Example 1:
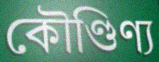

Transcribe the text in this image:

কৌণ্ডিণ্য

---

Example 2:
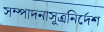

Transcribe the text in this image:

সম্পাদনাসূত্রনির্দেশ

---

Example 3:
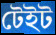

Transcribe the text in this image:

টেইট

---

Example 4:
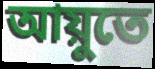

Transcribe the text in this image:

আয়ুতে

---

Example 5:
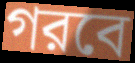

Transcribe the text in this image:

গরবে